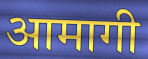
आमागी